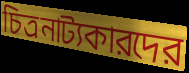
চিত্রনাট্যকারদের